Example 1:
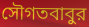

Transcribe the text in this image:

সৌগতবাবুর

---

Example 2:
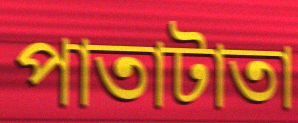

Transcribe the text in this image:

পাতাটাতা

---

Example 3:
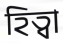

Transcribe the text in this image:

হিত্বা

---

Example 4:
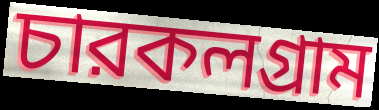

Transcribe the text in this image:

চারকলগ্রাম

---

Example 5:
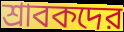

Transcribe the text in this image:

শ্রাবকদের